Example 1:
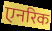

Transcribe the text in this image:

एनरिक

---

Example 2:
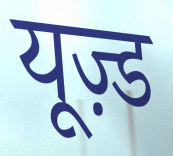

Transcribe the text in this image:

यूज़्ड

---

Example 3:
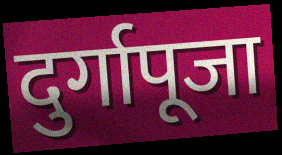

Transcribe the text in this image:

दुर्गापूजा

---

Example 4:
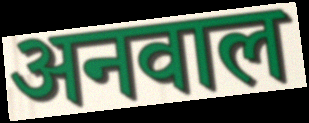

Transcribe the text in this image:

अनवाल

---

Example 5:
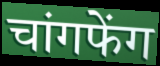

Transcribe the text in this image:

चांगफेंग